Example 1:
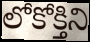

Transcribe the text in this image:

లోకోక్తిని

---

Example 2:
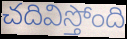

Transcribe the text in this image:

చదివిస్తోంది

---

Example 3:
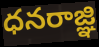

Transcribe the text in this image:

ధనరాజ్ఞి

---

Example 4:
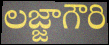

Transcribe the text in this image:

లజ్జాగౌరి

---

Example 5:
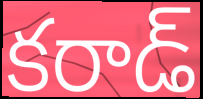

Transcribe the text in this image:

కరాడ్